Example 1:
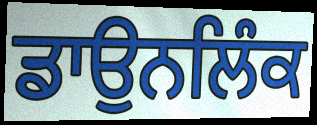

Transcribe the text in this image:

ਡਾਉਨਲਿੰਕ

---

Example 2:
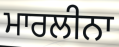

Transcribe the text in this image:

ਮਾਰਲੀਨਾ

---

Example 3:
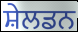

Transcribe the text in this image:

ਸ਼ੇਲਡਨ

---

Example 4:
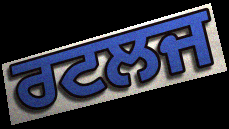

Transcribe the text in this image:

ਰਟਲਜ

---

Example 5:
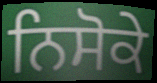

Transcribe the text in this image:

ਨਿਸੋਕੇ